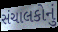
સંચાલકોનું